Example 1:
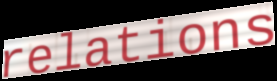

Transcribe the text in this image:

relations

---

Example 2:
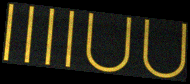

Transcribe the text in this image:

IIIIUU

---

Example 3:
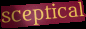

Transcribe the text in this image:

sceptical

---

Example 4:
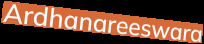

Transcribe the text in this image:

Ardhanareeswara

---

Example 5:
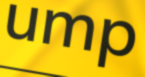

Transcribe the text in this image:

ump